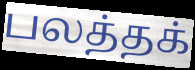
பலத்தக்